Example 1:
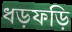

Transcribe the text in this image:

ধড়ফড়ি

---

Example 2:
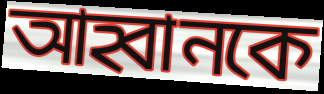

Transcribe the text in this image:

আহ্বানকে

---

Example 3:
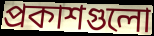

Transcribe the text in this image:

প্রকাশগুলো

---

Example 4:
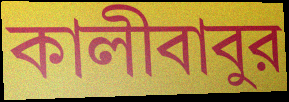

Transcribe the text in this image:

কালীবাবুর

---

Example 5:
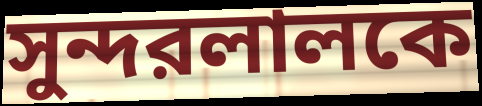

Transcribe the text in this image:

সুন্দরলালকে